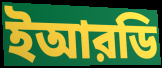
ইআরডি